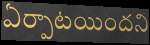
ఏర్పాటయిందని